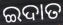
ଇଦାତ